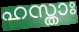
ഹസ്താഃ